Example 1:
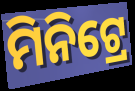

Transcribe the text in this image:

ମିନିଟ୍ରେ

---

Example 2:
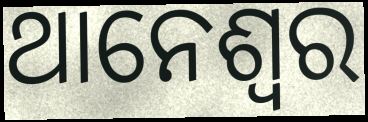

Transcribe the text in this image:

ଥାନେଶ୍ୱର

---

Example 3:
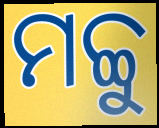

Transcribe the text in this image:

ମଚ୍ଚୁ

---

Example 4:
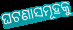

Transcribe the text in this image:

ଘଟଣାସମୂହକୁ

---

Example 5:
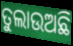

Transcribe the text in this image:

ତୁଲାଉଅଛି